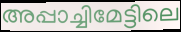
അപ്പാച്ചിമേട്ടിലെ